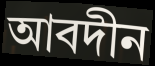
আবদীন